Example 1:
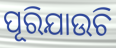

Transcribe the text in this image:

ପୂରିଯାଉଚି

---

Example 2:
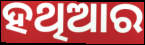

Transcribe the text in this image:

ହଥିଆର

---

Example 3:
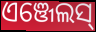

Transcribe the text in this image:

ଏଞ୍ଜେଲସ୍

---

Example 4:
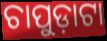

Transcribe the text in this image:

ଚାପୁଡ଼ାଟା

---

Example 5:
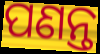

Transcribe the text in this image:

ପଣନ୍ତ